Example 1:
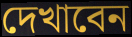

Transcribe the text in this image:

দেখাবেন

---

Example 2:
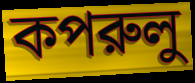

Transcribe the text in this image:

কপরুলু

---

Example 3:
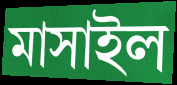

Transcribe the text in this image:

মাসাইল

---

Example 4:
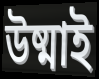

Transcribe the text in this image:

উষ্মাই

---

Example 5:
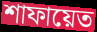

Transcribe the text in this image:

শাফায়েত